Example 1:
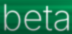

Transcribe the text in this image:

beta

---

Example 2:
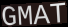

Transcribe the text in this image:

GMAT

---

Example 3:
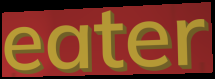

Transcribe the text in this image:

eater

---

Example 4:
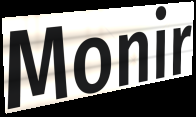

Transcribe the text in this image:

Monir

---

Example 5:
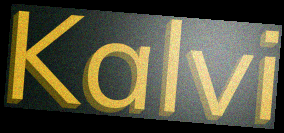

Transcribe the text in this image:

Kalvi